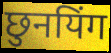
छुनयिंग